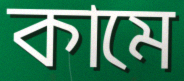
কামে